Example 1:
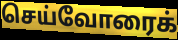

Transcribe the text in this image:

செய்வோரைக்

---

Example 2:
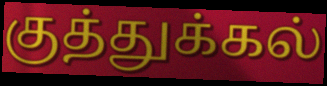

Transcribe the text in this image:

குத்துக்கல்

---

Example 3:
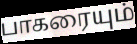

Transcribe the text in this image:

பாகரையும்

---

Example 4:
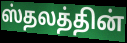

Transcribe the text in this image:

ஸ்தலத்தின்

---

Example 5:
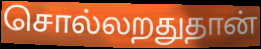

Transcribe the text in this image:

சொல்லறதுதான்